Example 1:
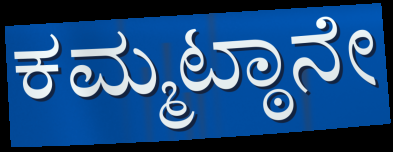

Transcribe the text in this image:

ಕಮ್ಮಟ್ಠಾನೇ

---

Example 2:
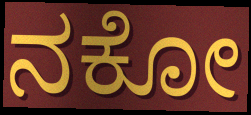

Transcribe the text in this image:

ನಕೋ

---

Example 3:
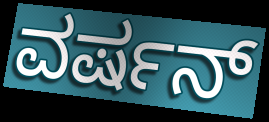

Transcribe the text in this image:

ವರ್ಷನ್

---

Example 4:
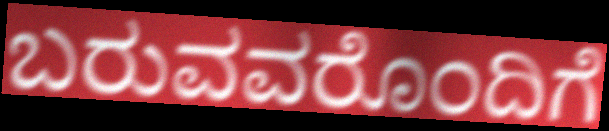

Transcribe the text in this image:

ಬರುವವರೊಂದಿಗೆ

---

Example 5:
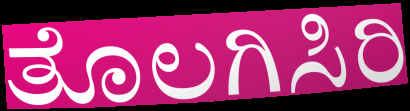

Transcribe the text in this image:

ತೊಲಗಿಸಿರಿ